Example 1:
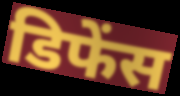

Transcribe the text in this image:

डिफेंस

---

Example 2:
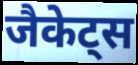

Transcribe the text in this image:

जैकेट्स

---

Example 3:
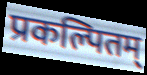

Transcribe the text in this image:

प्रकल्पितम्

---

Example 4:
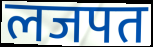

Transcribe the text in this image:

लजपत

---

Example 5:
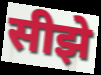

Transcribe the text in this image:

सीझे